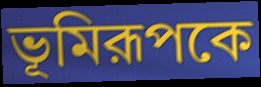
ভূমিরূপকে